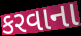
કરવાના